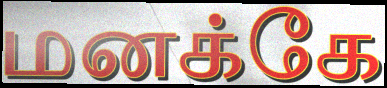
மனக்கே